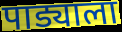
पाड्याला